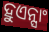
ହୁଏନ୍ସାଂ